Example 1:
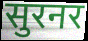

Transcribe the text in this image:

सुरनर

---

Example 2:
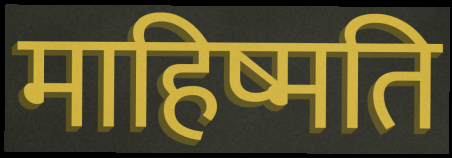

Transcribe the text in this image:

माहिष्मति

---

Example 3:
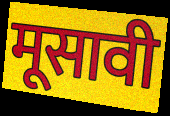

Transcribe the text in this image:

मूसावी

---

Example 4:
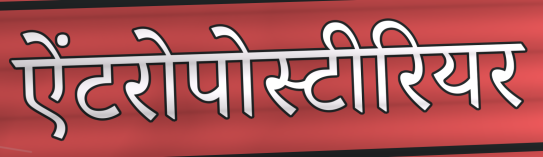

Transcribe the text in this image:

ऐंटरोपोस्टीरियर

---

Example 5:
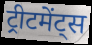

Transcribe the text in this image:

ट्रीटमेंट्स